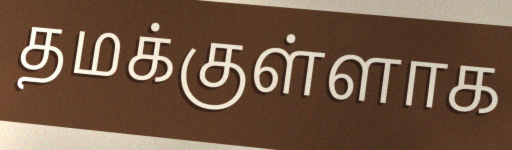
தமக்குள்ளாக